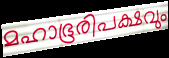
മഹാഭൂരിപക്ഷവും